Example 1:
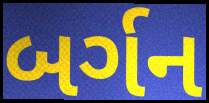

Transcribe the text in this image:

બર્ગન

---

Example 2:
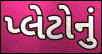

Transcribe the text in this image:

પ્લેટોનું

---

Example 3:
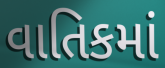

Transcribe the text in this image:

વાતિકમાં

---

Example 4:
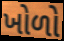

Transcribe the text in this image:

ખોળો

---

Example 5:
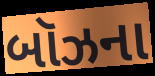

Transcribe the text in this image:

બૉઝના